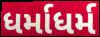
ધર્માધર્મ